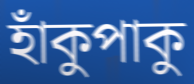
হাঁকুপাকু